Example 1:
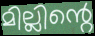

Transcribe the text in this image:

മില്ലിന്റെ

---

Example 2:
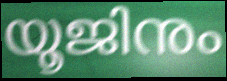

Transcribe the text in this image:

യൂജിനും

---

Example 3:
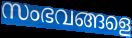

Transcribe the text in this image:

സംഭവങ്ങളെ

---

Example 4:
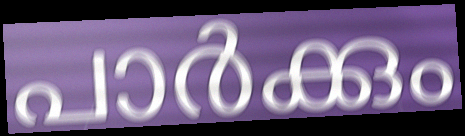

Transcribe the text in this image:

പാർക്കും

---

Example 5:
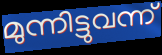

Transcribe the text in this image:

മുന്നിട്ടുവന്ന്